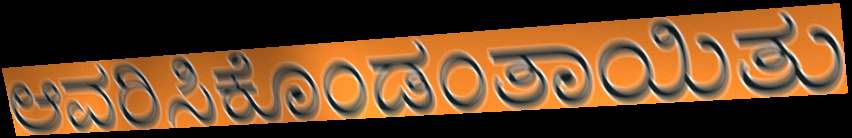
ಆವರಿಸಿಕೊಂಡಂತಾಯಿತು